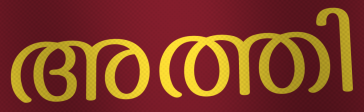
അത്തി